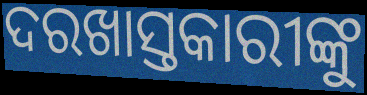
ଦରଖାସ୍ତକାରୀଙ୍କୁ